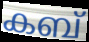
കബ്